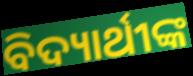
ବିଦ୍ୟାର୍ଥୀଙ୍କ